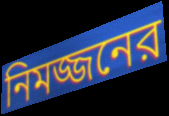
নিমজ্জনের